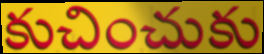
కుచించుకు